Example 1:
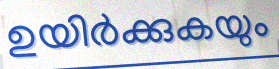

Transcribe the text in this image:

ഉയിർക്കുകയും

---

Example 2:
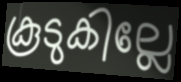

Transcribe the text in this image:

കൂടുകില്ലേ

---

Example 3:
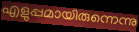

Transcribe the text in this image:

എളുപ്പമായിരുന്നെന്നു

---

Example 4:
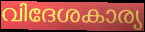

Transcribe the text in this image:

വിദേശകാര്യ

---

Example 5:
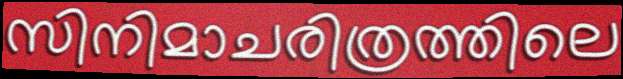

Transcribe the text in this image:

സിനിമാചരിത്രത്തിലെ